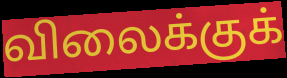
விலைக்குக்